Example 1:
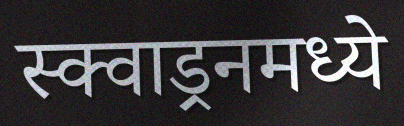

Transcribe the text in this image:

स्क्वाड्रनमध्ये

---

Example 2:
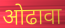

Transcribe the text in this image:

ओढावा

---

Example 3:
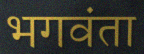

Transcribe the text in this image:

भगवंता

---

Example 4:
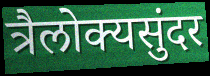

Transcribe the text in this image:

त्रैलोक्यसुंदर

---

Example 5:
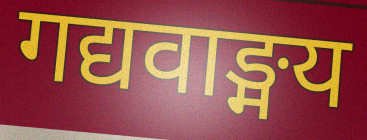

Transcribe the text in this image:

गद्यवाङ्मय